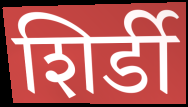
शिर्डी